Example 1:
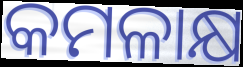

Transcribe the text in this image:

କମଳାକ୍ଷ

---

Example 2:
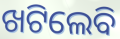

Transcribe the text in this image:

ଖଟିଲେବି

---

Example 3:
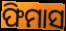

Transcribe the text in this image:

ଫିମାସ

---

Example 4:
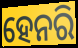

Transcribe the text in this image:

ହେନରି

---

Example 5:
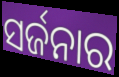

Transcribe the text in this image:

ସର୍ଜନାର